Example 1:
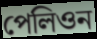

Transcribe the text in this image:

পেলিওন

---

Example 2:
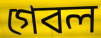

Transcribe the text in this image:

গেবল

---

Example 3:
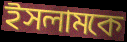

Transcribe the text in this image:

ইসলামকে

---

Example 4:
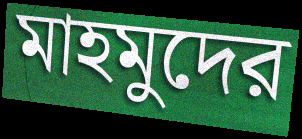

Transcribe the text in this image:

মাহমুদের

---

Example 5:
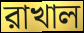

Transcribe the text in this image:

রাখাল